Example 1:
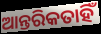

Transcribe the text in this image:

ଆନ୍ତରିକତାହିଁ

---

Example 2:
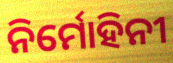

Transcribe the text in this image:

ନିର୍ମୋହିନୀ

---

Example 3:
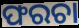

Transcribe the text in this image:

ଫରଚା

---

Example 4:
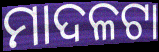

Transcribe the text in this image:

ମାଦଳଟା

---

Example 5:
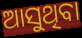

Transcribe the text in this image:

ଆସୁଥିବା